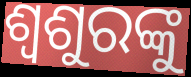
ଶ୍ୱଶୁରଙ୍କୁ